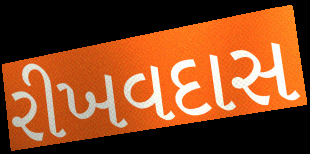
રીખવદાસ